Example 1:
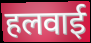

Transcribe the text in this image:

हलवाई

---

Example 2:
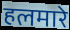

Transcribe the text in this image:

हलमारे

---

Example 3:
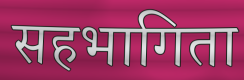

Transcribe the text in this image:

सहभागिता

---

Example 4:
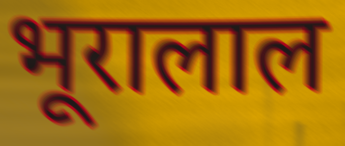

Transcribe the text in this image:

भूरालाल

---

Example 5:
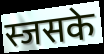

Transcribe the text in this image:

स्जसके